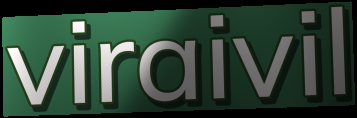
viraivil